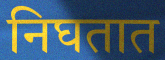
निघतात